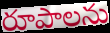
రూపాలను